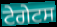
ਟੇਗੇਟਸ